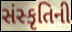
સંસ્કૃતિની